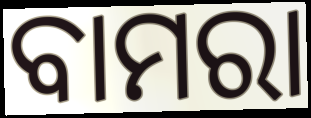
ବାମରା